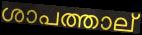
ശാപത്താല്